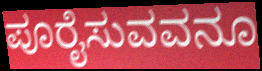
ಪೂರೈಸುವವನೂ